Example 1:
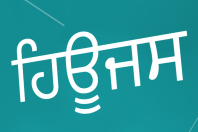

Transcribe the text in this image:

ਹਿਊਜਸ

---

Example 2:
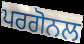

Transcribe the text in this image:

ਪਰਗੋਨਲ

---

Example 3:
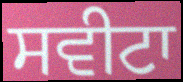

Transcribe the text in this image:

ਸਵੀਟਾ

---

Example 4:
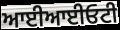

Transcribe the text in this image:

ਆਈਆਈਓਟੀ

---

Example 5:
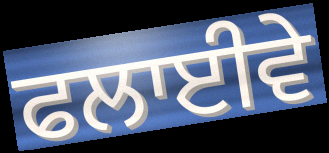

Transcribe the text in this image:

ਫਲਾਈਵੇ